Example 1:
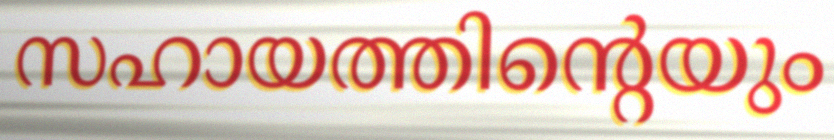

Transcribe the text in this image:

സഹായത്തിന്റെയും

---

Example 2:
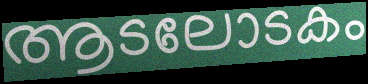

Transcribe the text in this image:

ആടലോടകം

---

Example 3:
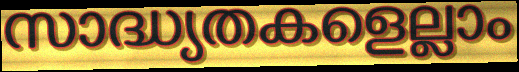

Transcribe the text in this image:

സാദ്ധ്യതകളെല്ലാം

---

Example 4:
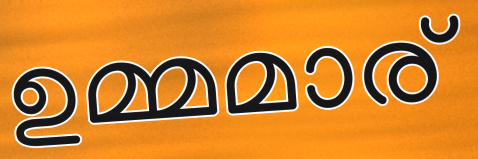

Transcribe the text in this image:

ഉമ്മമാര്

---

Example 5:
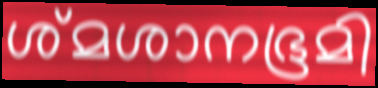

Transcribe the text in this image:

ശ്മശാനഭൂമി